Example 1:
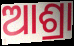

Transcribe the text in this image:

ଆଶ୍ରା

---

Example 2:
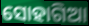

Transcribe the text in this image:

ସୋହାଗିଆ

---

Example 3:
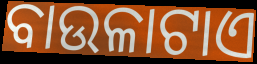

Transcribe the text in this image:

ବାଉଳାଟାଏ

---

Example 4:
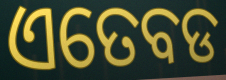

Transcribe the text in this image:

ଏତେବଡ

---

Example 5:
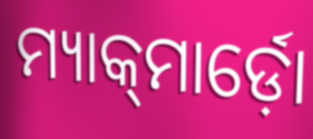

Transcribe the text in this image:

ମ୍ୟାକ୍‍ମାର୍ଡ଼ୋ